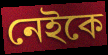
নেইকে